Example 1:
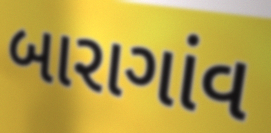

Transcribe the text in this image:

બારાગાંવ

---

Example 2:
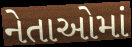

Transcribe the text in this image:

નેતાઓમાં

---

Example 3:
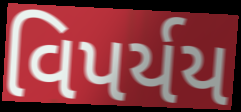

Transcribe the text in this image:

વિપર્યય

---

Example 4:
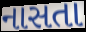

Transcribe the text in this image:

નાસતા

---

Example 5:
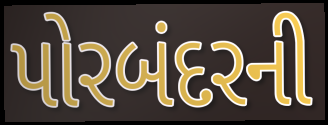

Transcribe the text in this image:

પોરબંદરની